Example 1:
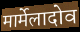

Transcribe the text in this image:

मार्मेलादोव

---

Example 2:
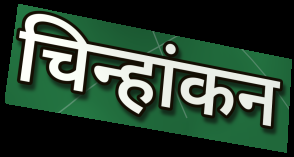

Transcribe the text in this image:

चिन्हांकन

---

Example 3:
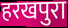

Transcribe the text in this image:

हरखपुरा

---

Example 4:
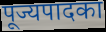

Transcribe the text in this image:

पूज्यपादका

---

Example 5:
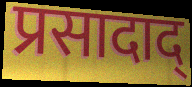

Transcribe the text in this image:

प्रसादाद्